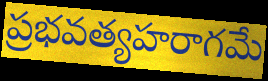
ప్రభవత్యహరాగమే